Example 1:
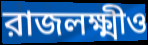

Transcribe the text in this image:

রাজলক্ষ্মীও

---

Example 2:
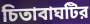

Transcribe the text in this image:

চিতাবাঘটির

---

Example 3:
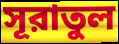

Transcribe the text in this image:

সূরাতুল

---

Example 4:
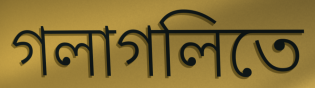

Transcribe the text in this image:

গলাগলিতে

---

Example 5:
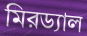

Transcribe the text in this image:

মিরড্যাল